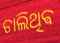
ଚାଲିଥିଵ